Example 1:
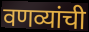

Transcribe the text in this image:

वणव्यांची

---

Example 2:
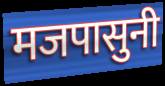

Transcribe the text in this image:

मजपासुनी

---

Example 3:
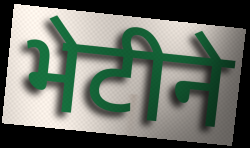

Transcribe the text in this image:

भेटीने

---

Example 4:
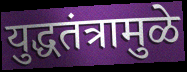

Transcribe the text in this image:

युद्धतंत्रामुळे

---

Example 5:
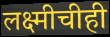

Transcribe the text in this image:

लक्ष्मीचीही